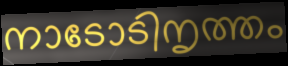
നാടോടിനൃത്തം